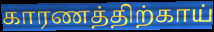
காரணத்திற்காய்